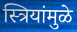
स्त्रियांमुळे